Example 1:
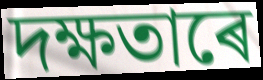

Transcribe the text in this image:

দক্ষতাৰে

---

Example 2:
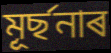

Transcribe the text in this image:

মূৰ্ছনাৰ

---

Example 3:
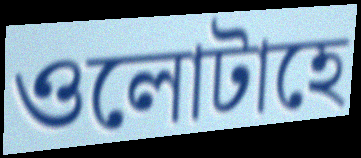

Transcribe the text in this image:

ওলোটাহে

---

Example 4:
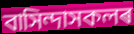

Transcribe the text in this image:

বাসিন্দাসকলৰ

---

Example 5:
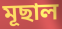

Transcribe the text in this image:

মূছাল